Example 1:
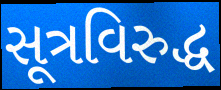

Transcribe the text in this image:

સૂત્રવિરુદ્ધ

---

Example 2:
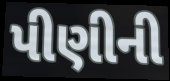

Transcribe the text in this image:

પીણીની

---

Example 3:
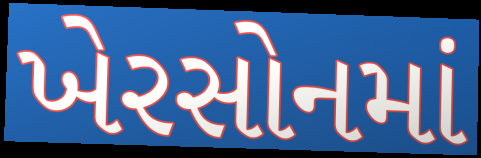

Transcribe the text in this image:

ખેરસોનમાં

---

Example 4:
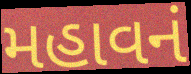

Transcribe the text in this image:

મહાવનં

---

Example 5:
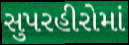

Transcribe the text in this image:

સુપરહીરોમાં